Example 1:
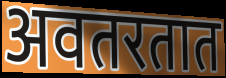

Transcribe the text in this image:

अवतरतात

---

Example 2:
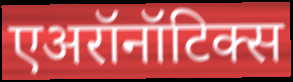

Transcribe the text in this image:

एअरॉनॉटिक्स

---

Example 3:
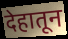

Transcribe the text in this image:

देहातून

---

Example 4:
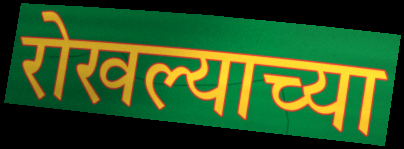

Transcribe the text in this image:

रोखल्याच्या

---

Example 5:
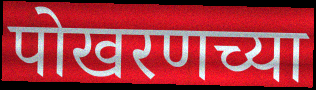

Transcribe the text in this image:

पोखरणच्या